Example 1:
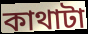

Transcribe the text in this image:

কাথাটা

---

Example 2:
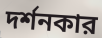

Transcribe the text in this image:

দর্শনকার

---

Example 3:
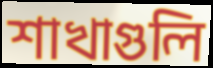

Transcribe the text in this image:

শাখাগুলি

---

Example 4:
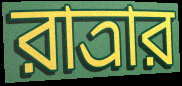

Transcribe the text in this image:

রাত্রার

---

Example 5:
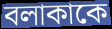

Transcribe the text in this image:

বলাকাকে